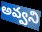
అవ్వని